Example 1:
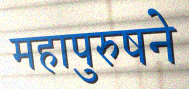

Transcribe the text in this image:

महापुरुषने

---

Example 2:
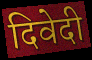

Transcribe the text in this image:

दिवेदी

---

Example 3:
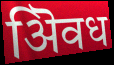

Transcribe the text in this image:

ऄिवध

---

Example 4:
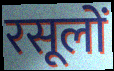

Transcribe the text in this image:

रसूलों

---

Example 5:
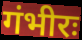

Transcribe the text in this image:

गंभीरः